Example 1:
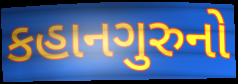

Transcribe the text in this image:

કહાનગુરુનો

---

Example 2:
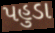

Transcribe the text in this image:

પહુડા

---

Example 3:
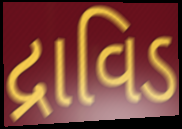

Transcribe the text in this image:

દ્રાવિડ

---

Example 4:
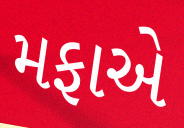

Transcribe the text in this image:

મફાએ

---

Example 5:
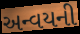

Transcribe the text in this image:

અન્વયની